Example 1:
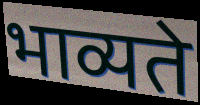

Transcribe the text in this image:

भाव्यते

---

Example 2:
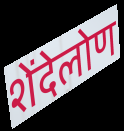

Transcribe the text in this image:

शेंदेलोण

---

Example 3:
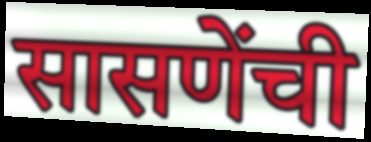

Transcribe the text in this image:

सासणेंची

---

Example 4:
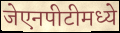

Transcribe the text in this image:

जेएनपीटीमध्ये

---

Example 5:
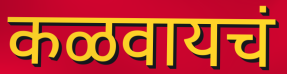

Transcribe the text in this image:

कळवायचं